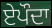
ਏਪੌਦਾ